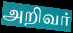
அறிவர்